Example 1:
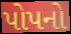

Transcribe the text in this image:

પોપનો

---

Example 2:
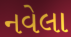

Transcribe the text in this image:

નવેલા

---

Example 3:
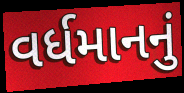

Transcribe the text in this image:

વર્ધમાનનું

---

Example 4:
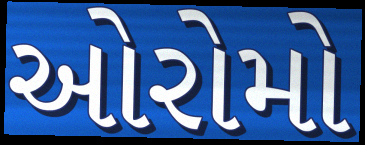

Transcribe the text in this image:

ઓરોમો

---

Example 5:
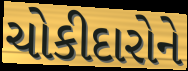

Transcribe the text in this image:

ચોકીદારોને